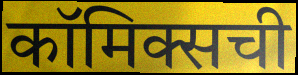
कॉमिक्सची